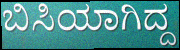
ಬಿಸಿಯಾಗಿದ್ದ